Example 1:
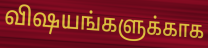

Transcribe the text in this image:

விஷயங்களுக்காக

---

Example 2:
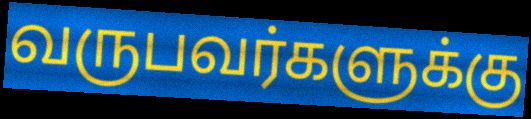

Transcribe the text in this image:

வருபவர்களுக்கு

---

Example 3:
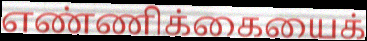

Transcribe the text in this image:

எண்ணிக்கையைக்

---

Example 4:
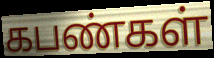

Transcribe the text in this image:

கபண்கள்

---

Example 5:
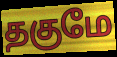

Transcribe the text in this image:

தகுமே